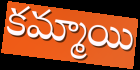
కమ్మాయి